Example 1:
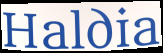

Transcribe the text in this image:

Haldia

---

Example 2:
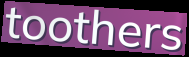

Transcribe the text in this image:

toothers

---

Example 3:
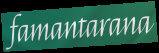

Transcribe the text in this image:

famantarana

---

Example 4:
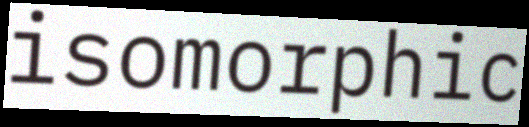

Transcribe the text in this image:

isomorphic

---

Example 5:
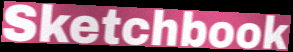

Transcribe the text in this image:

Sketchbook